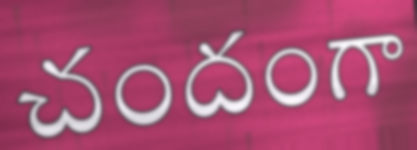
చందంగా